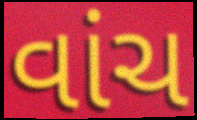
વાંચ